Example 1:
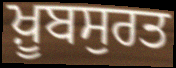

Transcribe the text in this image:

ਖ਼ੂਬਸੁਰਤ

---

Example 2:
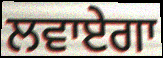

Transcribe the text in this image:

ਲਵਾਏਗਾ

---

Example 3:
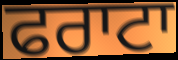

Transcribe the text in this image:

ਫਰਾਟਾ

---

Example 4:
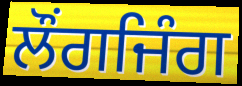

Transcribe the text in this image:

ਲੌਂਗਜਿੰਗ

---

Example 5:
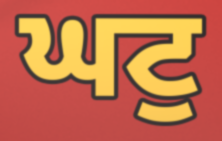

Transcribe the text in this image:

ਘਟੁ